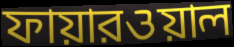
ফায়ারওয়াল